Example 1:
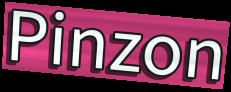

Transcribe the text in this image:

Pinzon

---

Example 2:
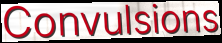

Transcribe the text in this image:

Convulsions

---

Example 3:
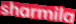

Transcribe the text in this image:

sharmila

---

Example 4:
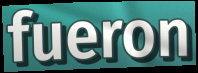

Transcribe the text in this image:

fueron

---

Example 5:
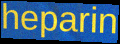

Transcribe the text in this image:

heparin